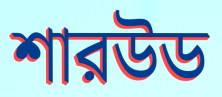
শারউড